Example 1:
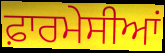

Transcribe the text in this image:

ਫ਼ਾਰਮੇਸੀਆਂ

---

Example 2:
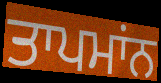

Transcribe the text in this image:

ਤਾਪਮਾਂਨ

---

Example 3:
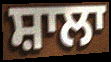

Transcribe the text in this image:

ਸ਼ਾਲਾ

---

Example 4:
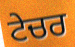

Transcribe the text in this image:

ਟੇਚਰ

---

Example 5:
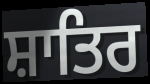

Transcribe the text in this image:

ਸ਼ਾਤਿਰ